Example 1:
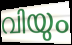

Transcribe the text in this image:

വിയും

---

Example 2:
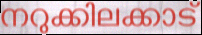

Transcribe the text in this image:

നറുക്കിലക്കാട്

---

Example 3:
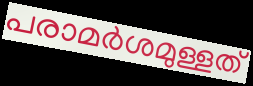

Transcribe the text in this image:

പരാമർശമുള്ളത്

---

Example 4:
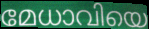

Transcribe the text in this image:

മേധാവിയെ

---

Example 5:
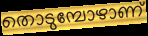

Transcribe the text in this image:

തൊടുമ്പോഴാണ്